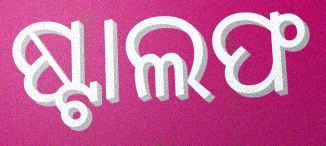
ଷ୍ଟାଲଫ